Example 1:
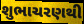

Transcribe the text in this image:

શુભાચરણથી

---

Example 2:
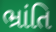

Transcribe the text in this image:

ભ્રાંતિ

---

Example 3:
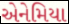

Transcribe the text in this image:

એનેમિયા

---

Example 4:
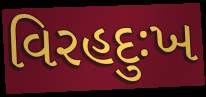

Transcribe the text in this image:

વિરહદુઃખ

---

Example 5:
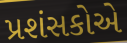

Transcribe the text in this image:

પ્રશંસકોએ